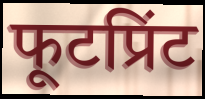
फूटप्रिंट